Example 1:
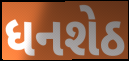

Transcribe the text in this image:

ધનશેઠ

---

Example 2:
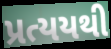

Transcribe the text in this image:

પ્રત્યયથી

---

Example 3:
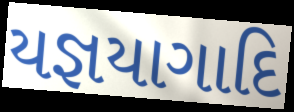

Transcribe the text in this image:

યજ્ઞયાગાદિ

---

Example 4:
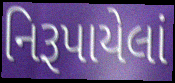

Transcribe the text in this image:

નિરૂપાયેલાં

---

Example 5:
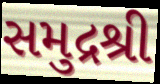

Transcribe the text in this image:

સમુદ્રશ્રી